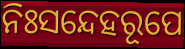
ନିଃସନ୍ଦେହରୂପେ